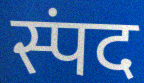
स्पंद